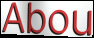
Abou